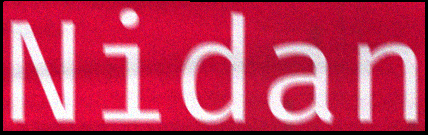
Nidan